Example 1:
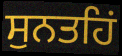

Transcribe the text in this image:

ਸੁਨਤਹਿਂ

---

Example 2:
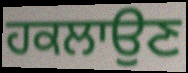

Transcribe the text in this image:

ਹਕਲਾਉਣ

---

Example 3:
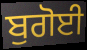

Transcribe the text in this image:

ਬੁਗੋਈ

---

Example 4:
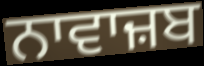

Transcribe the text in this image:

ਨਾਵਾਜ਼ਬ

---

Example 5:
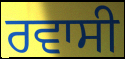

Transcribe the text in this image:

ਰਵਾਸੀ